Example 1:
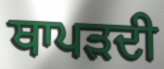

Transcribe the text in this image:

ਥਾਪੜਦੀ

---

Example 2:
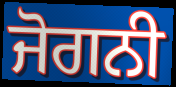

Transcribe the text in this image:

ਜੋਗਨੀ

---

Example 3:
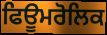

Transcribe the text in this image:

ਫਿਊਮਰੋਲਿਕ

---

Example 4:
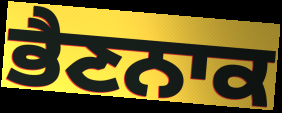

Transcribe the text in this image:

ਭੈਣਨਾਕ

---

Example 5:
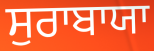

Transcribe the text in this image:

ਸੁਰਾਬਾਯਾ